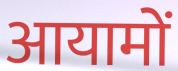
आयामों